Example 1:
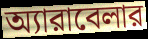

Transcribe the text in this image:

অ্যারাবেলার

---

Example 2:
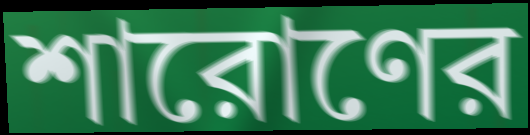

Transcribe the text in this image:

শারোণের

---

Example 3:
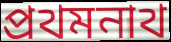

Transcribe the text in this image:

প্রথমনাথ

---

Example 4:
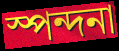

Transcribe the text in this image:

স্পন্দনা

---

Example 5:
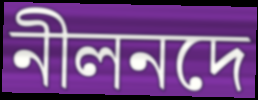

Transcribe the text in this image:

নীলনদে